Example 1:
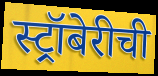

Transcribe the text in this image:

स्ट्रॉबेरीची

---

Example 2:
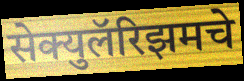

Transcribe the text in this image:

सेक्युलॅरिझमचे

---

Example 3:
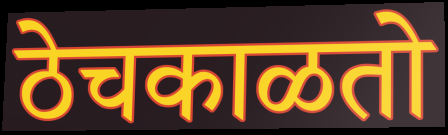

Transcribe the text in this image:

ठेचकाळतो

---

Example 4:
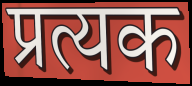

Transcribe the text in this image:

प्रत्यक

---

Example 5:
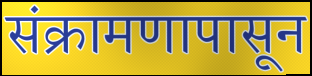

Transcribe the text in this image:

संक्रामणापासून